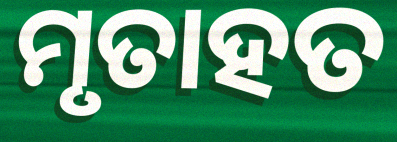
ମୃତାହତ